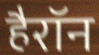
हैरॉन